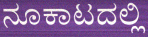
ನೂಕಾಟದಲ್ಲಿ